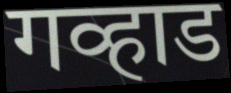
गव्हाड